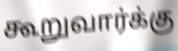
கூறுவார்க்கு